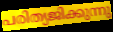
പരിത്യജിക്കുന്നു